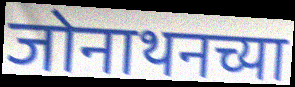
जोनाथनच्या